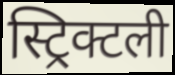
स्ट्रिक्टली